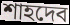
শাহদেব